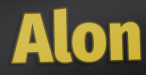
Alon